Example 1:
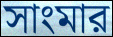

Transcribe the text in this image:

সাংমার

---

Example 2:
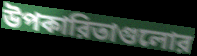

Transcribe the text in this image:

উপকারিতাগুলোর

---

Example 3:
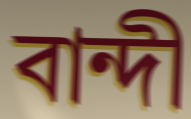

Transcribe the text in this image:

বান্দী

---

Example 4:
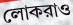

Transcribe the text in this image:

লোকরাও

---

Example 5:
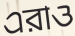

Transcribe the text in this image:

এরাও